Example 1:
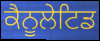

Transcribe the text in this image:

ਕੈਨੂਲੇਟਿਡ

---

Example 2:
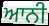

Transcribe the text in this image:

ਆਨੀ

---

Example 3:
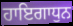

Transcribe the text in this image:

ਹਾਇਗਾਧੁਨ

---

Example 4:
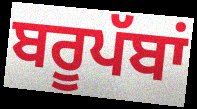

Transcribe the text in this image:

ਬਰੂਪੱਬਾਂ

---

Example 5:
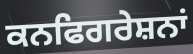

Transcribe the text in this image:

ਕਨਫਿਗਰੇਸ਼ਨਾਂ